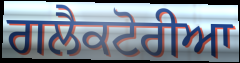
ਗਲੈਕਟੋਰੀਆ